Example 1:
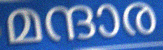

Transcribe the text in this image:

മന്ദാര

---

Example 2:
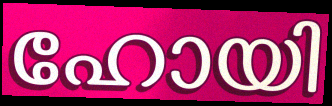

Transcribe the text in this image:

ഹോയി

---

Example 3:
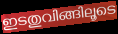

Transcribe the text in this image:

ഇടതുവിങ്ങിലൂടെ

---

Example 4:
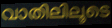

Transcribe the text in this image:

വാതിലിലൂടെ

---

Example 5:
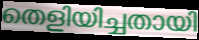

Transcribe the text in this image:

തെളിയിച്ചതായി